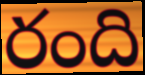
రంది